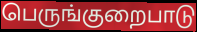
பெருங்குறைபாடு